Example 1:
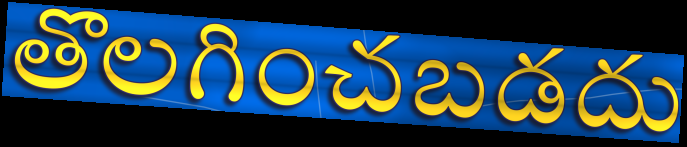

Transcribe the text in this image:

తొలగించబడదు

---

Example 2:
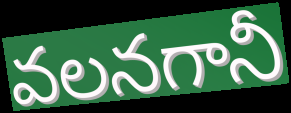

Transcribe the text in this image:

వలనగానీ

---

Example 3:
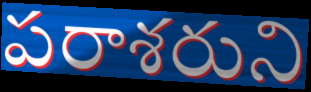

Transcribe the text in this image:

పరాశరుని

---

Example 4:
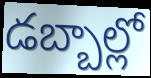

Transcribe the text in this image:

డబ్బాల్లో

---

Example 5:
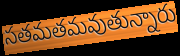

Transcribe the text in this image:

సతమతమవుతున్నారు